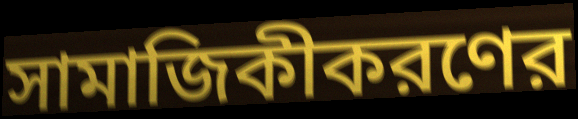
সামাজিকীকরণের